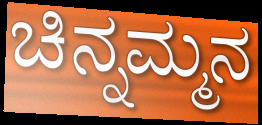
ಚಿನ್ನಮ್ಮನ